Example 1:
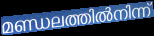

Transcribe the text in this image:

മണ്ഡലത്തിൽനിന്ന്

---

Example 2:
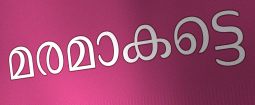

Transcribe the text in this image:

മരമാകട്ടെ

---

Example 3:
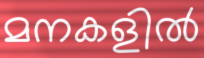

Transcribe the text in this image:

മനകളിൽ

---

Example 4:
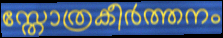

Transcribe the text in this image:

സ്തോത്രകീർത്തനം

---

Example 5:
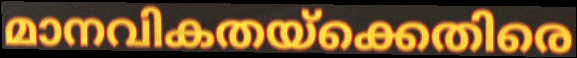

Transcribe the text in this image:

മാനവികതയ്ക്കെതിരെ